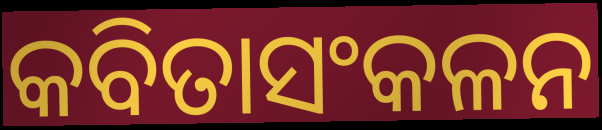
କବିତାସଂକଳନ